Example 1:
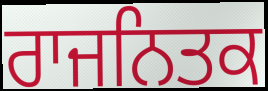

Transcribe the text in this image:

ਰਾਜਨਿਤਕ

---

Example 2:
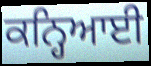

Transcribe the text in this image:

ਕਨ੍ਹਿਆਈ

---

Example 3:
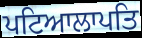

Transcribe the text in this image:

ਪਟਿਆਲਾਪਤਿ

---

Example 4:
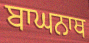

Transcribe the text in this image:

ਬਾਘਨਾਥ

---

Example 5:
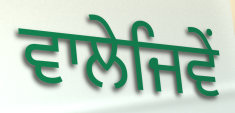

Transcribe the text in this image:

ਵਾਲੇਜਿਵੇਂ